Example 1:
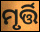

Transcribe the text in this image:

ମୃର୍ତ୍ତି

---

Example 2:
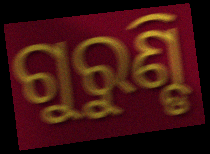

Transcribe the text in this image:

ଗୁରୁଣ୍ଡି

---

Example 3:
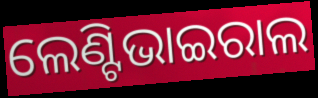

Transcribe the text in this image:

ଲେଣ୍ଟିଭାଇରାଲ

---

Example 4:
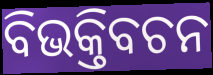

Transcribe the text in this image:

ବିଭକ୍ତିବଚନ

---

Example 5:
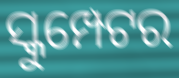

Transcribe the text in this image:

ସ୍କୁମ୍ପେଟର